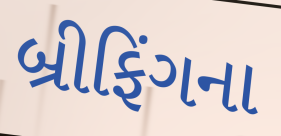
બ્રીફિંગના